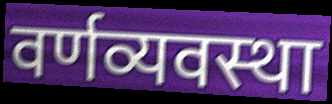
वर्णव्यवस्था